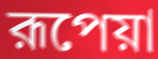
রূপেয়া